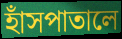
হাঁসপাতালে